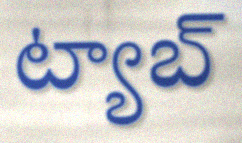
ట్యాబ్